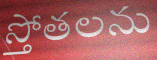
స్తోతలను